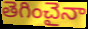
తెగించైనా